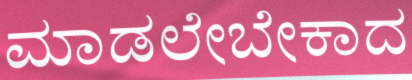
ಮಾಡಲೇಬೇಕಾದ